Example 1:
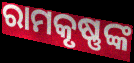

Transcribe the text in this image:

ରାମକୃଷ୍ଣଙ୍କ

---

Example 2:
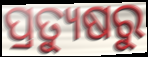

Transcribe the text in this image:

ପ୍ରତ୍ୟୁଷରୁ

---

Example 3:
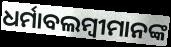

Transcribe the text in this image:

ଧର୍ମାବଲମ୍ବୀମାନଙ୍କ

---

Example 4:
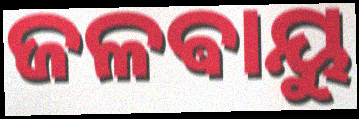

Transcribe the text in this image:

ଜଳଵାୟୁ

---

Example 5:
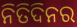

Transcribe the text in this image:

ନିତିଦିନର